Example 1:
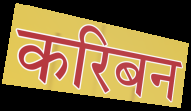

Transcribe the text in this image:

करिबन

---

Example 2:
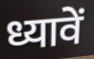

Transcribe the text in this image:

ध्यावें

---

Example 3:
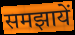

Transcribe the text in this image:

समझायें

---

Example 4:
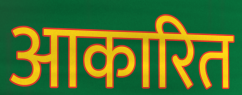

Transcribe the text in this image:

आकारित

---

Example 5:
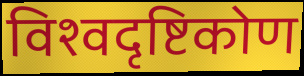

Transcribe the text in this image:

विश्वदृष्टिकोण